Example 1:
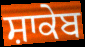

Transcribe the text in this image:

ਸ਼ਾਕੇਬ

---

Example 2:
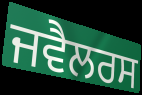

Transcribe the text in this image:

ਜਵੈਲਰਸ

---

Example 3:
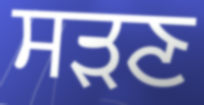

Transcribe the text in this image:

ਸੜਣ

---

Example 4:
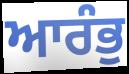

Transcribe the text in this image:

ਆਰੰਭੁ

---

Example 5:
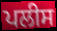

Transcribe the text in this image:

ਪਲੀਸ